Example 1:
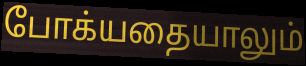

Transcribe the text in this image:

போக்யதையாலும்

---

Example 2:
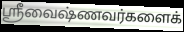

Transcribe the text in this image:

ஸ்ரீவைஷ்ணவர்களைக்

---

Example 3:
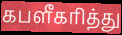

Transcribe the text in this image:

கபளீகரித்து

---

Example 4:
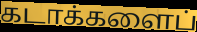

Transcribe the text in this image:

கடாக்களைப்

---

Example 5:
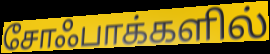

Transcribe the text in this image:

சோஃபாக்களில்